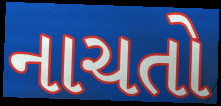
નાચતો